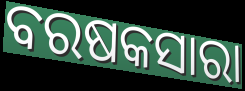
ବରଷକସାରା